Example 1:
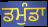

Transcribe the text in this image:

ਡਮੁੰਡਾ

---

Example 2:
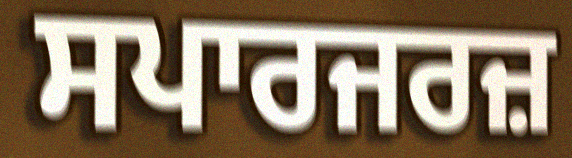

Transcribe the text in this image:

ਸਪਾਰਜਰਜ਼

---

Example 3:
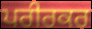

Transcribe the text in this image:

ਪਰੀਰਕਰ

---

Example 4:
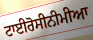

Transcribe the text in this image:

ਟਾਈਰੋਸੀਨੀਮੀਆ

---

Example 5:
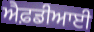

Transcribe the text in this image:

ਐਫ਼ਡੀਆਈ